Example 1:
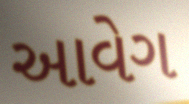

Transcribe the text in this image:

આવેગ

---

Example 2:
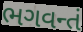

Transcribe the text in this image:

ભગવન્તં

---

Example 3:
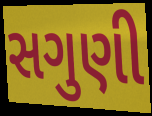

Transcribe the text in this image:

સગુણી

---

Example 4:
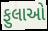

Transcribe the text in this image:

ફુલાઓ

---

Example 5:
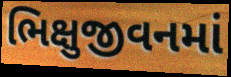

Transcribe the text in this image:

ભિક્ષુજીવનમાં